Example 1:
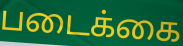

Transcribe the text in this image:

படைக்கை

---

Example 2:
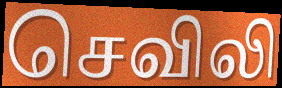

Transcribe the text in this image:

செவிலி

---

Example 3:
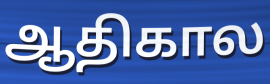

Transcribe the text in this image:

ஆதிகால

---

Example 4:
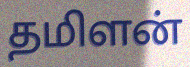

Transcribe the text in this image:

தமிளன்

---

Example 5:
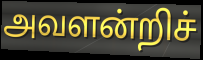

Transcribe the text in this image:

அவளன்றிச்